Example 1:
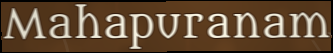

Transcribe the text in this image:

Mahapuranam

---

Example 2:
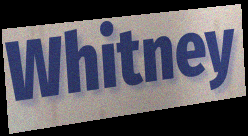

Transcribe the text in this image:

Whitney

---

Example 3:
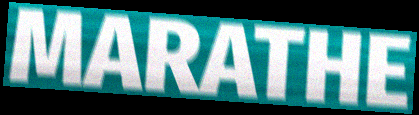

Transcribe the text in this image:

MARATHE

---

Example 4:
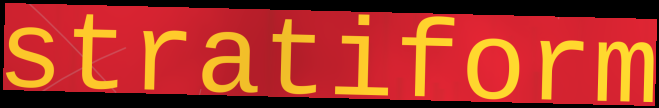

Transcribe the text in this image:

stratiform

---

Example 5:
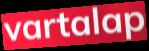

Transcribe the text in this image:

vartalap